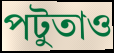
পটুতাও